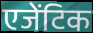
एजेंटिक